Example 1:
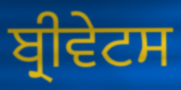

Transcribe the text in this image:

ਬ੍ਰੀਵੇਟਸ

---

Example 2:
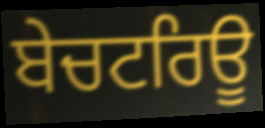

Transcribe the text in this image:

ਬੇਚਟਰਿਊ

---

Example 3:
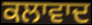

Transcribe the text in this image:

ਕਲਾਵਾਦ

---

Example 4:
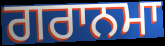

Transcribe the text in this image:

ਗਰਾਨਮਾ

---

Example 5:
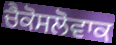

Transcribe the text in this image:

ਚੈਕੋਸਲੋਵਾਕ